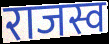
राजस्‍व